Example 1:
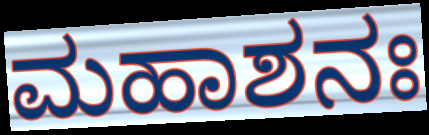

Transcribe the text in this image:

ಮಹಾಶನಃ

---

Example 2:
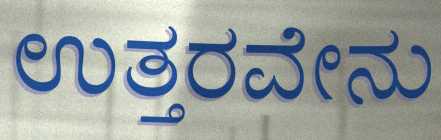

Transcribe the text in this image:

ಉತ್ತರವೇನು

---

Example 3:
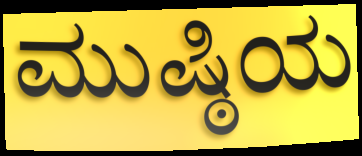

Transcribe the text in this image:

ಮುಷ್ಠಿಯ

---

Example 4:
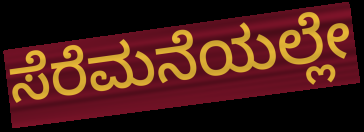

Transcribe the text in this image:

ಸೆರೆಮನೆಯಲ್ಲೇ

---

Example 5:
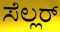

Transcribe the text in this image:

ಸೆಲ್ಲರ್